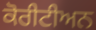
ਕੋਰੀਟੀਅਨ